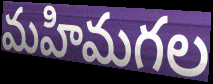
మహిమగల